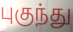
புகுந்து